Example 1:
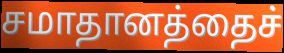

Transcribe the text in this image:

சமாதானத்தைச்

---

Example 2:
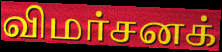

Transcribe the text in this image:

விமர்சனக்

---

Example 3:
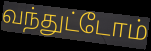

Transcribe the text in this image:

வந்துட்டோம்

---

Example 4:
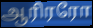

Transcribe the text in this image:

ஆரிரரோ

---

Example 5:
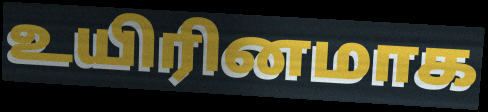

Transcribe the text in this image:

உயிரினமாக